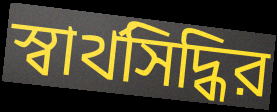
স্বার্থসিদ্ধির